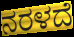
ನರಳದೆ